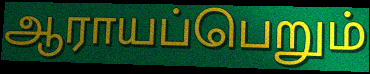
ஆராயப்பெறும்